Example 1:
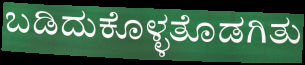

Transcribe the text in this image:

ಬಡಿದುಕೊಳ್ಳತೊಡಗಿತು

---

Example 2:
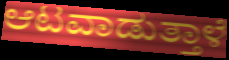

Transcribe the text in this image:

ಆಟವಾಡುತ್ತಾಳೆ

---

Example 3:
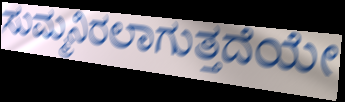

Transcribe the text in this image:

ಸುಮ್ಮನಿರಲಾಗುತ್ತದೆಯೇ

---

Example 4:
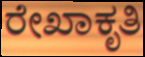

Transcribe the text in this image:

ರೇಖಾಕೃತಿ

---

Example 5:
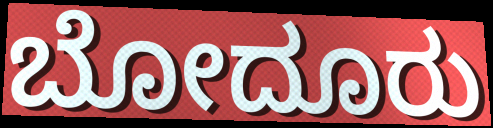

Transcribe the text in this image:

ಬೋದೂರು